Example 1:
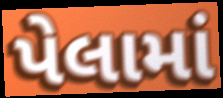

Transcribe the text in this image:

પેલામાં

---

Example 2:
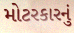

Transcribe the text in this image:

મોટરકારનું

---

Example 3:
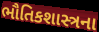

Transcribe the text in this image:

ભૌતિકશાસ્ત્રના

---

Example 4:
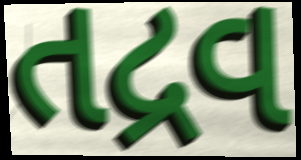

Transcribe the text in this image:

તદ્રવ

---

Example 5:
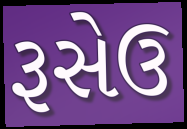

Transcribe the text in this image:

રૂસેઉ